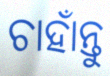
ଚାହାଁନ୍ତୁ